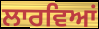
ਲਾਰਵਿਆਂ